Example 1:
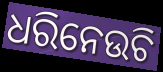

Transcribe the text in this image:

ଧରିନେଉଚି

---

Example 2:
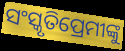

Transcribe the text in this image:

ସଂସ୍କୃତିପ୍ରେମୀଙ୍କୁ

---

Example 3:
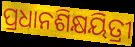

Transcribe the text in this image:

ପ୍ରଧାନଶିକ୍ଷୟିତ୍ରୀ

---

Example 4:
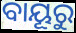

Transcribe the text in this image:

ବାୟୂରୁ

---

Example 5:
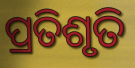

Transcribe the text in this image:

ପ୍ରତିଶୃତି